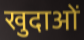
खुदाओं